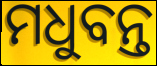
ମଧୁବନ୍ତ